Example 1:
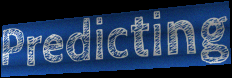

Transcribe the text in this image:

Predicting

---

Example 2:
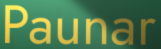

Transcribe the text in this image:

Paunar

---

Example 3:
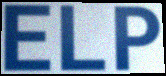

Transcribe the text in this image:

ELP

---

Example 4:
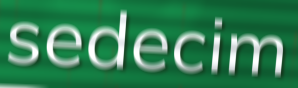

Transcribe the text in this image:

sedecim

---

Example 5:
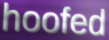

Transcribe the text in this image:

hoofed